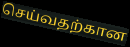
செய்வதற்கான